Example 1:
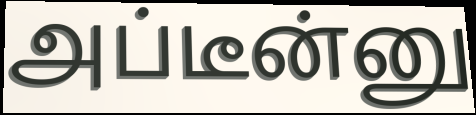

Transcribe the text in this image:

அப்டீன்னு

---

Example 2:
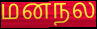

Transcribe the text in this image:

மனநல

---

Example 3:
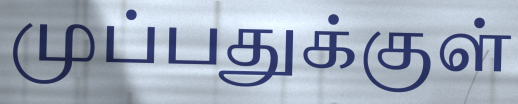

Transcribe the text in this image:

முப்பதுக்குள்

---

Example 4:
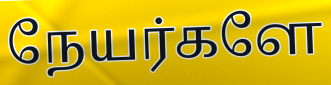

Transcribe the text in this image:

நேயர்களே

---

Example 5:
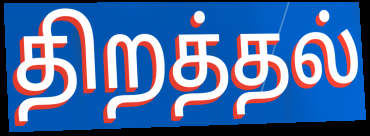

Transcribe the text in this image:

திறத்தல்